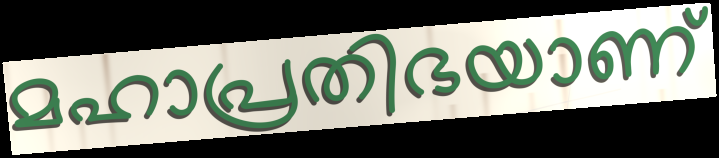
മഹാപ്രതിഭയാണ്